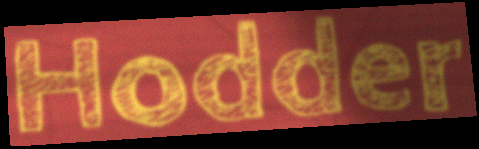
Hodder